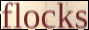
flocks